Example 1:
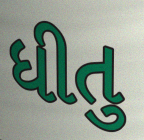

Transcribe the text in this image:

ધીતુ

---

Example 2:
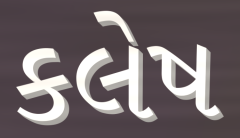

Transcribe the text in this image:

કલેષ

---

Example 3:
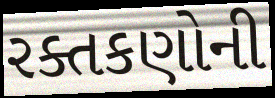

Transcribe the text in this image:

રક્તકણોની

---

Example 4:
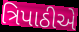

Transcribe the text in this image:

ત્રિપાઠીએ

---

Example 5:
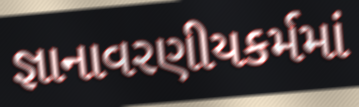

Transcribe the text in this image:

જ્ઞાનાવરણીયકર્મમાં